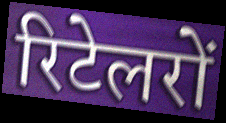
रिटेलरों